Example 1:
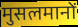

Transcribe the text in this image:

मुसलमानों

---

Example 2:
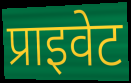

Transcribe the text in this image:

प्राइवेट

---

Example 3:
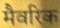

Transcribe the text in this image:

मैवरिक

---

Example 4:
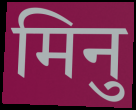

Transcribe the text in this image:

मिनु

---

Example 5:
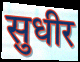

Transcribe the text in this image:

सुधीर